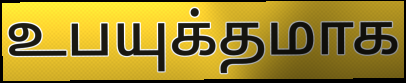
உபயுக்தமாக